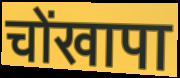
चोंखापा